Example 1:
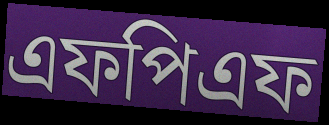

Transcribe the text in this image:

এফপিএফ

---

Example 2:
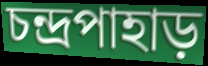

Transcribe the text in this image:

চন্দ্রপাহাড়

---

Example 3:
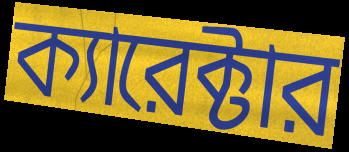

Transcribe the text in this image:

ক্যারেক্টার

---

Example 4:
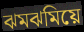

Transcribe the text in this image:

ঝমঝমিয়ে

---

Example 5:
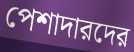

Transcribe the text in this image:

পেশাদারদের